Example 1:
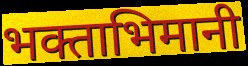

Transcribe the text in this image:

भक्ताभिमानी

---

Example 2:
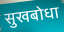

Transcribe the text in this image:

सुखबोधा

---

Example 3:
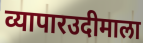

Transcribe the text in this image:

व्यापारउदीमाला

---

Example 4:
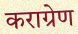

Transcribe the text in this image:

कराग्रेण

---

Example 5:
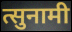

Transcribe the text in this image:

त्सुनामी